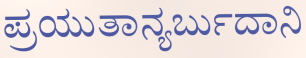
ಪ್ರಯುತಾನ್ಯರ್ಬುದಾನಿ